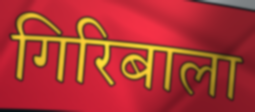
गिरिबाला